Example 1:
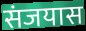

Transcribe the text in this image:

संजयास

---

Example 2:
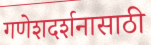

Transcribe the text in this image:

गणेशदर्शनासाठी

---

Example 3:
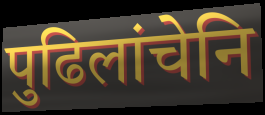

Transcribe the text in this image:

पुढिलांचेनि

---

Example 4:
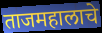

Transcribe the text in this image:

ताजमहालाचे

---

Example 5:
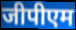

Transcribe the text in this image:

जीपीएम